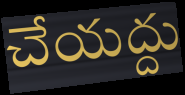
చేయద్దు